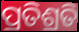
ପ୍ରତିଶ୍ରତି